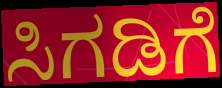
ಸಿಗಡಿಗೆ